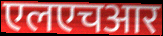
एलएचआर